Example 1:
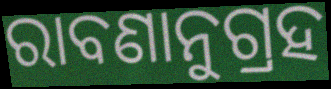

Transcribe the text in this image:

ରାବଣାନୁଗ୍ରହ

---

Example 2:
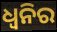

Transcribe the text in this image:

ଧ୍ୱନିର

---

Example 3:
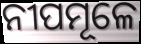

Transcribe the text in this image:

ନୀପମୂଳେ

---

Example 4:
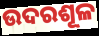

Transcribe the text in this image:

ଉଦରଶୂଳ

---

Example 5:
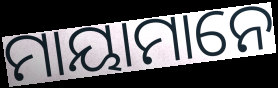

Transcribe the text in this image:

ମାୟାମାନେ